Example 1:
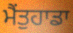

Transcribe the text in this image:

ਮੈਂਤੁਹਾਡਾ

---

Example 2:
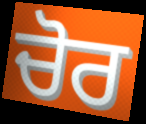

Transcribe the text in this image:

ਚੋਰ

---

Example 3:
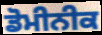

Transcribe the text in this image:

ਡੋਮੀਨੀਕ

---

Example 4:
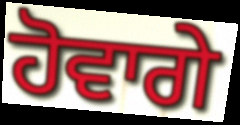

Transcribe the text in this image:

ਹੋਵਾਗੇ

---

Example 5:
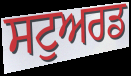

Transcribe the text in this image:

ਸਟੁਅਰਡ